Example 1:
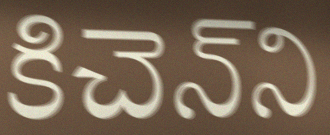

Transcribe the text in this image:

కిచెన్‌ని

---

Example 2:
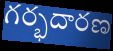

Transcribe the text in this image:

గర్భదారణ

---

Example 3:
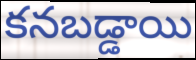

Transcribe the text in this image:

కనబడ్డాయి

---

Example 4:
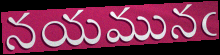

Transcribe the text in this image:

నయమునఁ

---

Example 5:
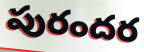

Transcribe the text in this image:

పురందర